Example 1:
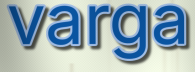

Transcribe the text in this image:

varga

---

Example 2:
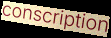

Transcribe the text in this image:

conscription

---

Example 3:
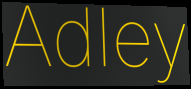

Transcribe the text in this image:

Adley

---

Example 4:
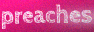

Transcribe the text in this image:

preaches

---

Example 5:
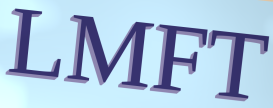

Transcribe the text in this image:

LMFT